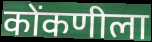
कोंकणीला